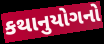
કથાનુયોગનો